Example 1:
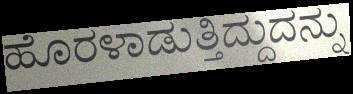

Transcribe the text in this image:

ಹೊರಳಾಡುತ್ತಿದ್ದುದನ್ನು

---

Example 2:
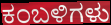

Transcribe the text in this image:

ಕಂಬಳಿಗಳು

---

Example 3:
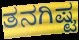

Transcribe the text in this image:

ತನಗಿಷ್ಟ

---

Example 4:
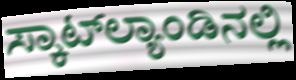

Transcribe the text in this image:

ಸ್ಕಾಟ್‌ಲ್ಯಾಂಡಿನಲ್ಲಿ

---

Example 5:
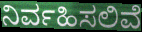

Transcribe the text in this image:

ನಿರ್ವಹಿಸಲಿವೆ